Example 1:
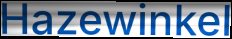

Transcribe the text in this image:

Hazewinkel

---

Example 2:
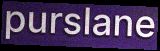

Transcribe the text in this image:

purslane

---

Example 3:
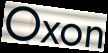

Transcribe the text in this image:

Oxon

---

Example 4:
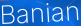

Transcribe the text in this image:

Banian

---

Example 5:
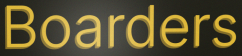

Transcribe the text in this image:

Boarders